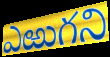
ఎఱుగని